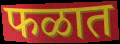
फळात